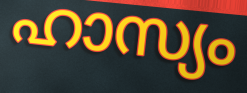
ഹാസ്യം